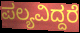
ಪಲ್ಯವಿದ್ದರೆ